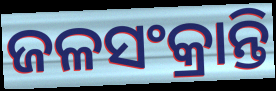
ଜଳସଂକ୍ରାନ୍ତି